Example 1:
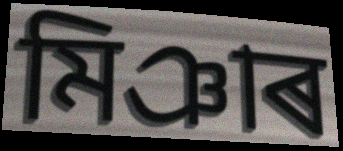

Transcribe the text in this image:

মিঞাৰ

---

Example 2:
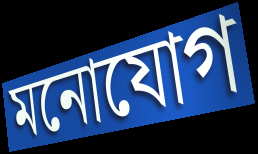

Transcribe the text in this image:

মনোযোগ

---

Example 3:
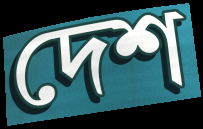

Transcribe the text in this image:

দেশ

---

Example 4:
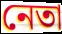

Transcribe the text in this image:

নেতা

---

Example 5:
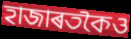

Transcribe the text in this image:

হাজাৰতকৈও